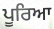
ਪੂਰਿਆ